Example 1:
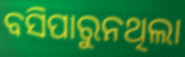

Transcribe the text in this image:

ବସିପାରୁନଥିଲା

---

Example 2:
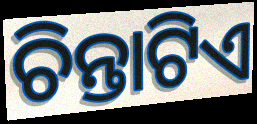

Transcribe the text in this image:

ଚିନ୍ତାଟିଏ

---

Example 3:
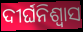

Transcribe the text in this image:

ଦୀର୍ଘନିଶ୍ବାସ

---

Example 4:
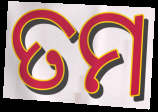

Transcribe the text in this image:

ତମ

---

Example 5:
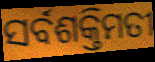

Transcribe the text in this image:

ସର୍ବଶକ୍ତିମତୀ